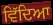
ਵਿੱਦਿਆ